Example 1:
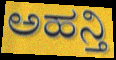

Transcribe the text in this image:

ಅಹನ್ತಿ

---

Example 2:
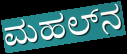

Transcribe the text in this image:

ಮಹಲ್‌ನ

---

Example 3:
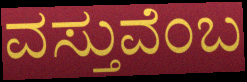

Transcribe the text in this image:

ವಸ್ತುವೆಂಬ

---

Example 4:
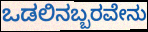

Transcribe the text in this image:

ಒಡಲಿನಬ್ಬರವೇನು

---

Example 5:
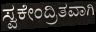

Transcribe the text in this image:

ಸ್ವಕೇಂದ್ರಿತವಾಗಿ